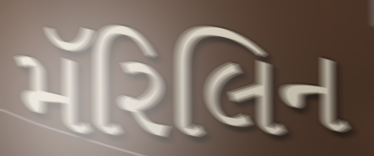
મૅરિલિન